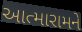
આત્મારામને